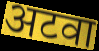
अटवा